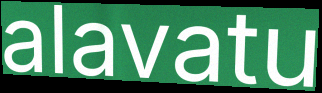
alavatu